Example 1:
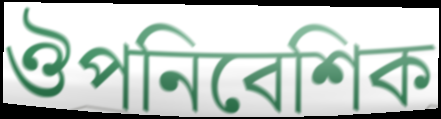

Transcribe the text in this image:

ঔপনিবেশিক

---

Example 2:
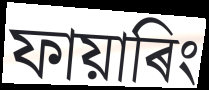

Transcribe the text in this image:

ফায়াৰিং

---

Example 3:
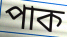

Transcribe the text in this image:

পাক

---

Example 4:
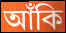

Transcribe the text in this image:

আঁকি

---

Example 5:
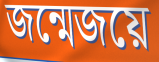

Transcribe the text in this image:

জন্মেজয়ে